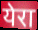
येरा